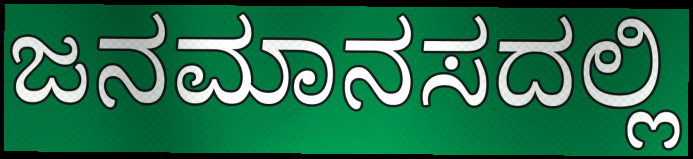
ಜನಮಾನಸದಲ್ಲಿ